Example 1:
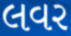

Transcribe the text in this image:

લવર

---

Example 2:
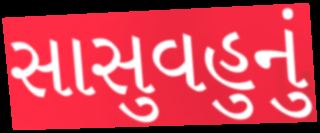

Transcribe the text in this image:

સાસુવહુનું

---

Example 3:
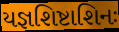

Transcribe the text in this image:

યજ્ઞશિષ્ટાશિનઃ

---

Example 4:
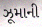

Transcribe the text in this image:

ઝૂમાની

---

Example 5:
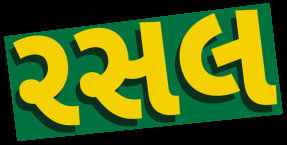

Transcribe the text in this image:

રસલ